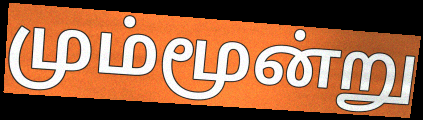
மும்மூன்று